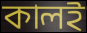
কালই